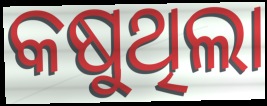
କଷୁଥିଲା